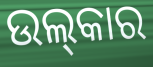
ଉଲ୍‍କାର